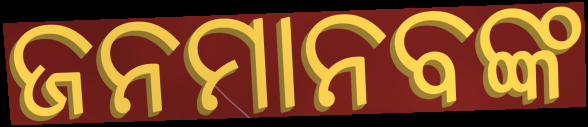
ଜନମାନବଙ୍କ